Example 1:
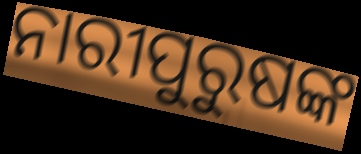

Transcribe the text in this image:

ନାରୀପୁରୁଷଙ୍କ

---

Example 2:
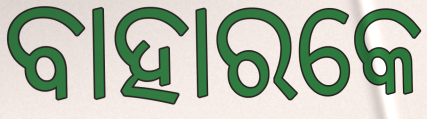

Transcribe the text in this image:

ବାହାରକେ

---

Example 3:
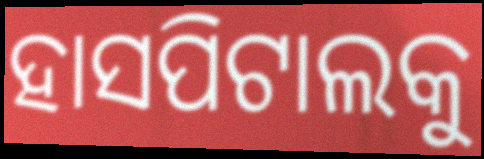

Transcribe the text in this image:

ହାସପିଟାଲକୁ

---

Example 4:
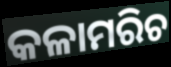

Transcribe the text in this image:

କଳାମରିଚ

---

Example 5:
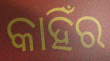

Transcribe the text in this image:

କାହିଁର